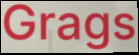
Grags